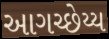
આગચ્છેય્ય